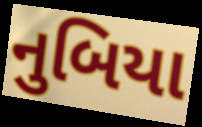
નુબિયા